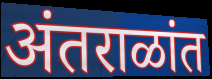
अंतराळांत